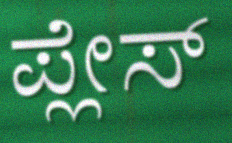
ಪ್ಲೇಸ್